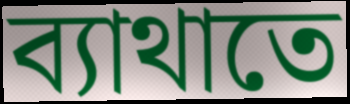
ব্যাথাতে